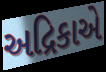
અદ્રિકાએ